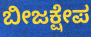
ಬೀಜಕ್ಷೇಪ